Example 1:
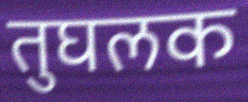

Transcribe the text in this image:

तुघलक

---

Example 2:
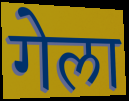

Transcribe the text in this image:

गेला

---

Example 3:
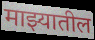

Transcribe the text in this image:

माझ्यातील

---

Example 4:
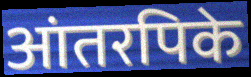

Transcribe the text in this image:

आंतरपिके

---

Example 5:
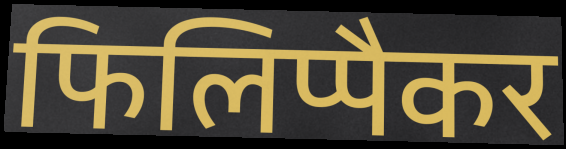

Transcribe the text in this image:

फिलिप्पैकर